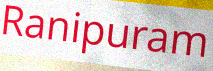
Ranipuram